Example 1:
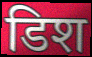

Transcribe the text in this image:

डिश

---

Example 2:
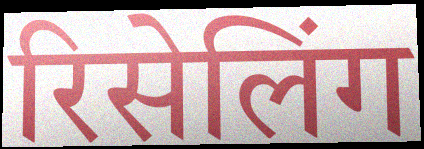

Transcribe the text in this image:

रिसेलिंग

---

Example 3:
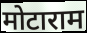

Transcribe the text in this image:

मोटाराम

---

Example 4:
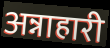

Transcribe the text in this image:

अन्नाहारी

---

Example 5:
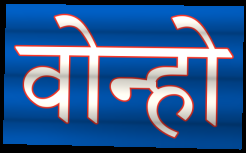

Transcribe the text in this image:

वोन्हो